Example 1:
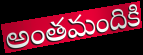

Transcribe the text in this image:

అంతమందికి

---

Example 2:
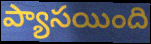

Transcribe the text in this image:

ప్యాసయింది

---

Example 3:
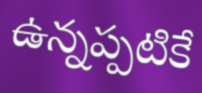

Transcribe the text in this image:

ఉన్నప్పటికే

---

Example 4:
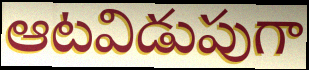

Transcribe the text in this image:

ఆటవిడుపుగా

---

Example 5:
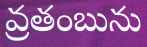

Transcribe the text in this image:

వ్రతంబును